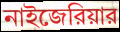
নাইজেরিয়ার